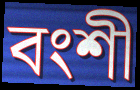
বংশী